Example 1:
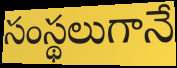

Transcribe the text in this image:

సంస్థలుగానే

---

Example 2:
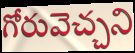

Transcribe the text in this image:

గోరువెచ్చని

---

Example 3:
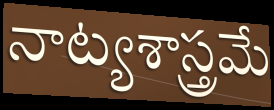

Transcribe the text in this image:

నాట్యశాస్త్రమే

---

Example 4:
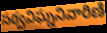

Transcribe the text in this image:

సర్వవిఘ్ననివారిణి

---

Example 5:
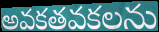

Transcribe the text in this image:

అవకతవకలను